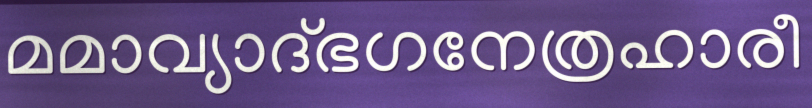
മമാവ്യാദ്ഭഗനേത്രഹാരീ